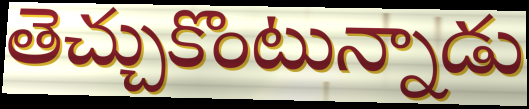
తెచ్చుకొంటున్నాడు